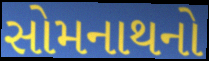
સોમનાથનો